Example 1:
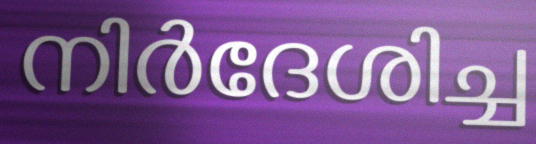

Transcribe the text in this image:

നിർദേശിച്ച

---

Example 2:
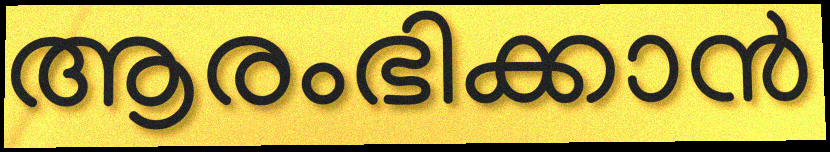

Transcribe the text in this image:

ആരംഭിക്കാൻ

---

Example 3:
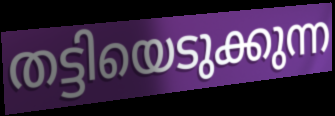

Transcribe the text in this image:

തട്ടിയെടുക്കുന്ന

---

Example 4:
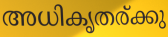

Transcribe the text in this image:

അധികൃതര്ക്കു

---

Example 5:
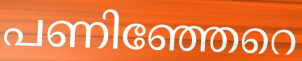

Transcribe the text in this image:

പണിഞ്ഞേറെ